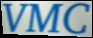
VMC